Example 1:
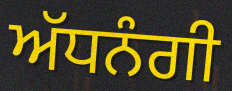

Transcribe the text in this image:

ਅੱਧਨੰਗੀ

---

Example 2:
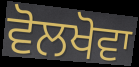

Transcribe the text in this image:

ਵੋਲਖੋਵਾ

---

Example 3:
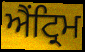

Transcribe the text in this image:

ਐਂਟ੍ਰਿਮ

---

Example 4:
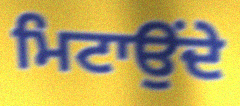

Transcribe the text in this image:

ਮਿਟਾਉਂਦੇ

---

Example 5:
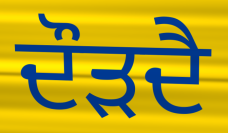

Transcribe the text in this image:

ਦੌੜਦੈ